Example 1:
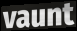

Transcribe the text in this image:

vaunt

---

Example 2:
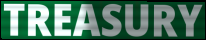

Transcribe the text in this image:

TREASURY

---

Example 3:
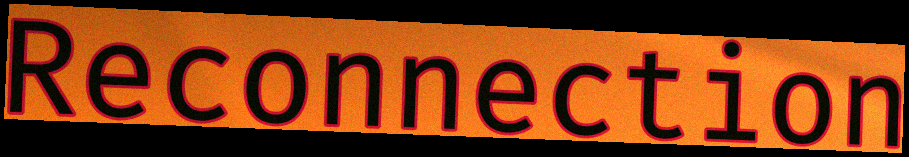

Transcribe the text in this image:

Reconnection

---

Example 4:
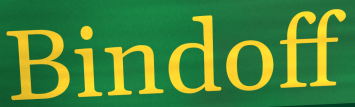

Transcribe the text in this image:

Bindoff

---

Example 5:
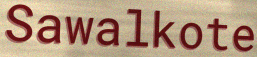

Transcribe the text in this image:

Sawalkote